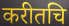
करीतचि